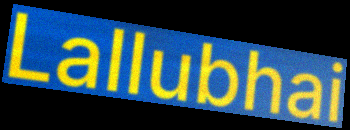
Lallubhai